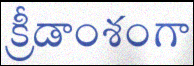
క్రీడాంశంగా